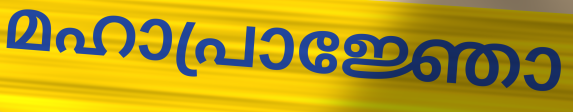
മഹാപ്രാജ്ഞോ